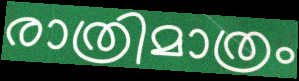
രാത്രിമാത്രം